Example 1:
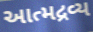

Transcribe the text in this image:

આત્મદ્રવ્ય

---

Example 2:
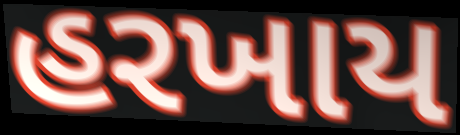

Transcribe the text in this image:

હરખાય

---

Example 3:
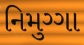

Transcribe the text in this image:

નિમુગ્ગા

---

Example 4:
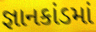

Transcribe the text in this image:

જ્ઞાનકાંડમાં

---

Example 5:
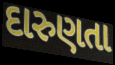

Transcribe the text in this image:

દારુણતા